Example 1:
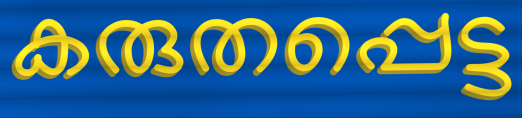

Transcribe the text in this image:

കരുതപ്പെട്ട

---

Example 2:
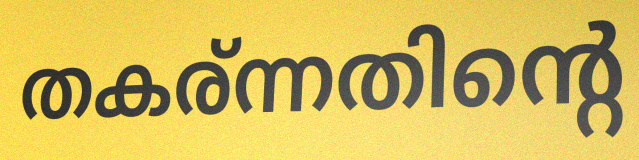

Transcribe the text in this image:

തകര്ന്നതിന്റെ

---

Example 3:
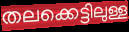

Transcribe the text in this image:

തലക്കെട്ടിലുള്ള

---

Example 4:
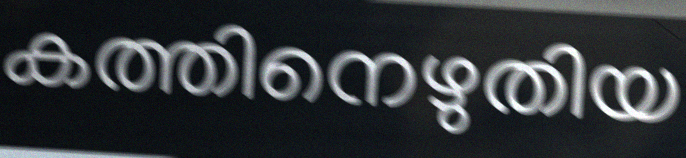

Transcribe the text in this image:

കത്തിനെഴുതിയ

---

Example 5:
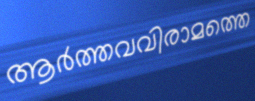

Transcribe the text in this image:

ആർത്തവവിരാമത്തെ